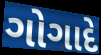
ગોગાદે